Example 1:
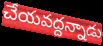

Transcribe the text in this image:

చేయవద్దన్నాడు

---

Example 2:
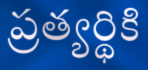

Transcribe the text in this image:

ప్రత్యర్థికి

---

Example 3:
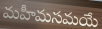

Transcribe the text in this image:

మహీమసమయే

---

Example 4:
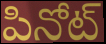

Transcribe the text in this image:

పినోట్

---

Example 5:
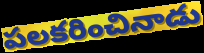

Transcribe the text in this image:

పలకరించినాడు